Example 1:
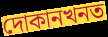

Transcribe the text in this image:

দোকানখনত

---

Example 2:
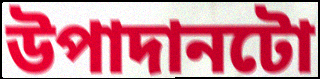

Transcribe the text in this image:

উপাদানটো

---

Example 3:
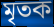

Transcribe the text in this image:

মৃতক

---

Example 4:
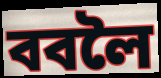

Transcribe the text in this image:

ববলৈ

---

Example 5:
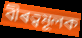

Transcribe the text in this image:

বীৰত্বমূলক